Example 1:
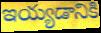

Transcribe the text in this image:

ఇయ్యడానికి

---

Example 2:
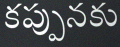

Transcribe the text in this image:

కప్పునకు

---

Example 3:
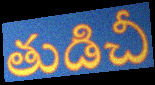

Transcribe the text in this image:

తుడిచీ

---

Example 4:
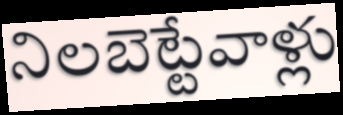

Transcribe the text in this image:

నిలబెట్టేవాళ్లు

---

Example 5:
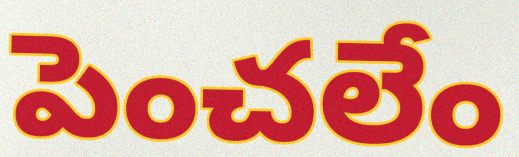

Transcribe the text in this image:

పెంచలేం